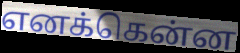
எனக்கென்ன